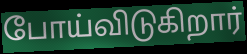
போய்விடுகிறார்